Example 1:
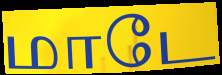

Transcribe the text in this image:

மாடே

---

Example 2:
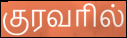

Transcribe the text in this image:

குரவரில்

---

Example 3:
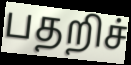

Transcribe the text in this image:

பதறிச்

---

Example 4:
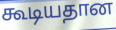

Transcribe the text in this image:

கூடியதான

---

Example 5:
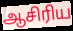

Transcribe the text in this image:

ஆசிரிய